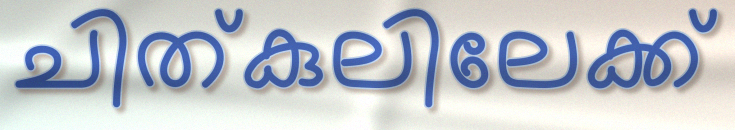
ചിത്കുലിലേക്ക്